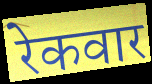
रेकवार